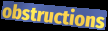
obstructions